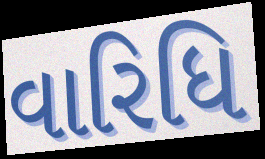
વારિધિ